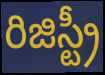
రిజిస్ట్రీ